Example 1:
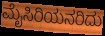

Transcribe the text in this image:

ಮೈಸಿರಿಯನರಿದು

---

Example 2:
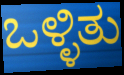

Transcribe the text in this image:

ಒಳ್ಳಿತು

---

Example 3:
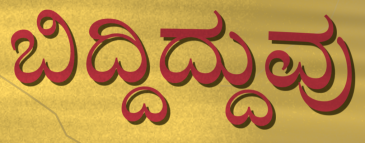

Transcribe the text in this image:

ಬಿದ್ದಿದ್ದುವು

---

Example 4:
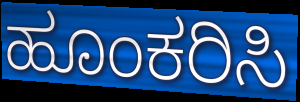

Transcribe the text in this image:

ಹೂಂಕರಿಸಿ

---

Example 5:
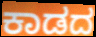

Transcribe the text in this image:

ಕಾಡದ